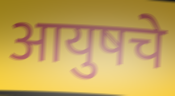
आयुषचे